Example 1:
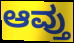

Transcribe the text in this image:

ಆವ್ತು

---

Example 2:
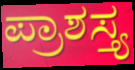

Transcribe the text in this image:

ಪ್ರಾಶಸ್ತ್ಯ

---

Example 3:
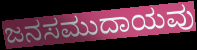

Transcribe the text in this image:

ಜನಸಮುದಾಯವು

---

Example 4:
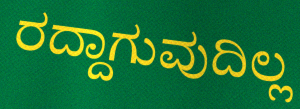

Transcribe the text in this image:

ರದ್ದಾಗುವುದಿಲ್ಲ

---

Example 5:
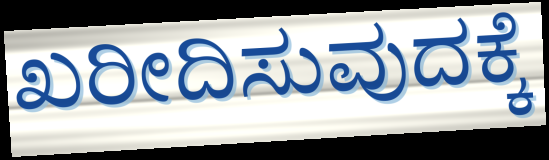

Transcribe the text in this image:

ಖರೀದಿಸುವುದಕ್ಕೆ